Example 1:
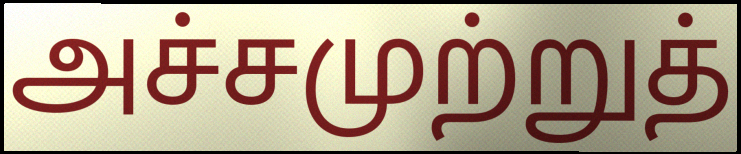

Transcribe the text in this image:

அச்சமுற்றுத்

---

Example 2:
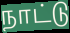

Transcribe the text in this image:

நாட்டு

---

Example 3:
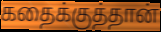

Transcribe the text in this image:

கதைக்குத்தான்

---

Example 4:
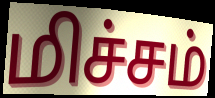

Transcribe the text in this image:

மிச்சம்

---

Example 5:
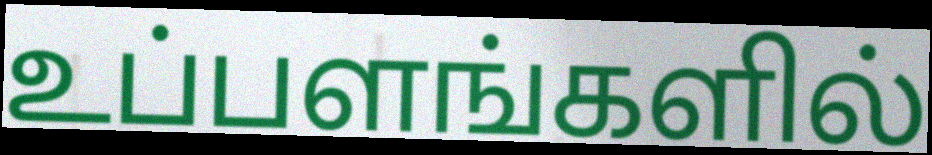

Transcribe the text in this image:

உப்பளங்களில்